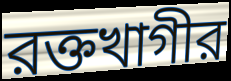
রক্তখাগীর